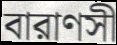
বারাণসী